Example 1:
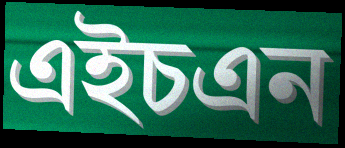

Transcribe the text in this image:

এইচএন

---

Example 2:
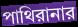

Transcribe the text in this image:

পাথিরানার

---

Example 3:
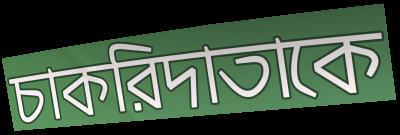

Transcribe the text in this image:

চাকরিদাতাকে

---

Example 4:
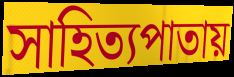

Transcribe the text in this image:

সাহিত্যপাতায়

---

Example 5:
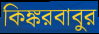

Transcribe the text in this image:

কিঙ্করবাবুর